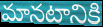
మానటానికి